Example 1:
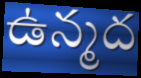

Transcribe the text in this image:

ఉన్మద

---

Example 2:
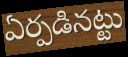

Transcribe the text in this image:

ఏర్పడినట్టు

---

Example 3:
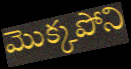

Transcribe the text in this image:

మొక్కపోని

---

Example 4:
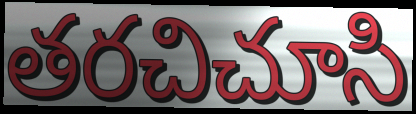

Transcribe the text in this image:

తరచిచూసి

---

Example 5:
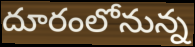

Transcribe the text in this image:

దూరంలోనున్న